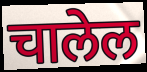
चालेल